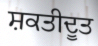
ਸ਼ਕਤੀਦੂਤ